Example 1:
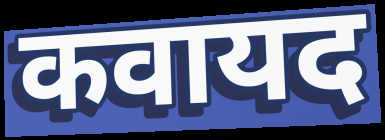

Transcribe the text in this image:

कवायद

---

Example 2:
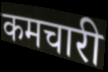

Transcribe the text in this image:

कमचारी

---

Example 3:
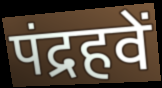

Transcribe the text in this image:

पंद्रहवें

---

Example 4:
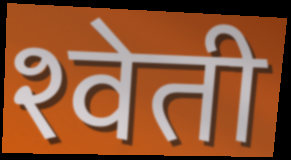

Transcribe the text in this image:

श्वेती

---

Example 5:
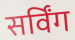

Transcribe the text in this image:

सर्विंग